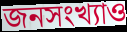
জনসংখ্যাও